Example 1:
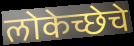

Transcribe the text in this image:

लोकेच्छेचे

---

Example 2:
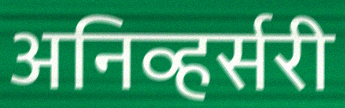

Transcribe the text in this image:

अनिव्हर्सरी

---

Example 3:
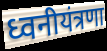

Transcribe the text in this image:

ध्वनीयंत्रणा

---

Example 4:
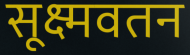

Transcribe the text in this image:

सूक्ष्मवतन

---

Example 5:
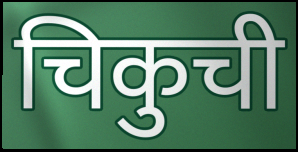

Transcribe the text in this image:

चिकुची